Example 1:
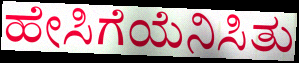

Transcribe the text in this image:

ಹೇಸಿಗೆಯೆನಿಸಿತು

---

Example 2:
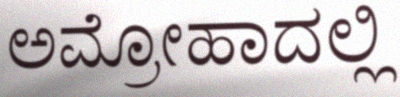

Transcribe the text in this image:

ಅಮ್ರೋಹಾದಲ್ಲಿ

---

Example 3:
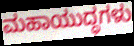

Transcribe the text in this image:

ಮಹಾಯುದ್ಧಗಳು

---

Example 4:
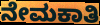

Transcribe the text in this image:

ನೇಮಕಾತಿ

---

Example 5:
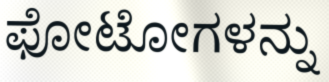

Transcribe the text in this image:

ಫೋಟೋಗಳನ್ನು